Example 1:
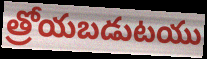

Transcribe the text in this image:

త్రోయబడుటయు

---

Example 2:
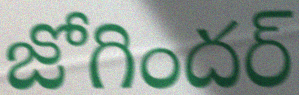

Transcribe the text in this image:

జోగిందర్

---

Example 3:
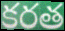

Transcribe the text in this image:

కరత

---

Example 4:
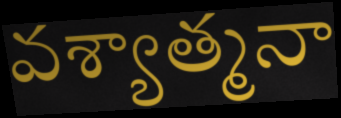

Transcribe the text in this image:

వశ్యాత్మనా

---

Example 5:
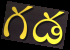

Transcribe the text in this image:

గడ